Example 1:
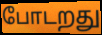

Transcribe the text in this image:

போடறது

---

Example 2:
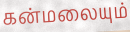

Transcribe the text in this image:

கன்மலையும்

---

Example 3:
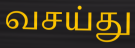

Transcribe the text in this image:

வசய்து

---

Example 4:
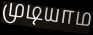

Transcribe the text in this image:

முடியாம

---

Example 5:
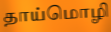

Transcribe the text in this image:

தாய்மொழி